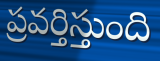
ప్రవర్తిస్తుంది